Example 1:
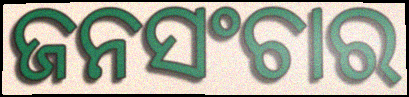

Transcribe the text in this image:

ଜନସଂଚାର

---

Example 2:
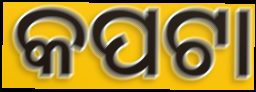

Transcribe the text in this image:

କପଟା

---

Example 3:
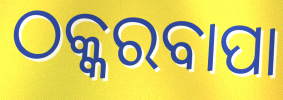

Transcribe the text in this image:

ଠକ୍କରବାପା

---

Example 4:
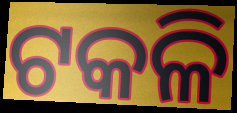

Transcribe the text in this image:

ଟକଳି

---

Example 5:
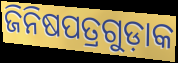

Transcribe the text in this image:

ଜିନିଷପତ୍ରଗୁଡ଼ାକ